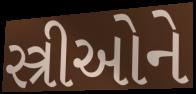
સ્ત્રીઓને